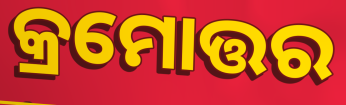
କ୍ରମୋତ୍ତର